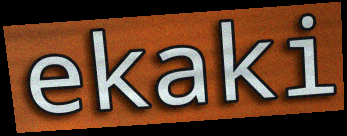
ekaki